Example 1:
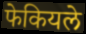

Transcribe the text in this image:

फेकियले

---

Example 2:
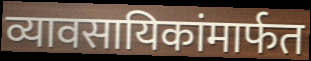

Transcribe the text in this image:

व्यावसायिकांमार्फत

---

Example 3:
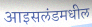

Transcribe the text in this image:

आइसलंडमधील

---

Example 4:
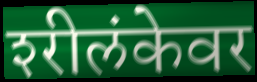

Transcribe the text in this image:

श्रीलंकेवर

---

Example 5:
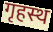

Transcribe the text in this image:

गृहस्थ